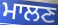
ਮਾਲਣ